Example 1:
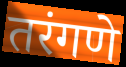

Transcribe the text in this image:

तरंगणे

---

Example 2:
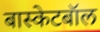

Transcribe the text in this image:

बास्केटबॉल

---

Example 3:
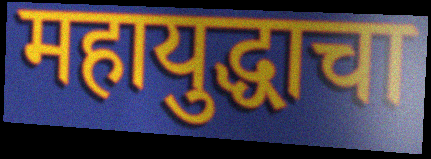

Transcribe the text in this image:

महायुद्धाचा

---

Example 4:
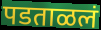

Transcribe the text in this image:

पडताळलं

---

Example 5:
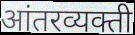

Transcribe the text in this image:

आंतरव्यक्ती